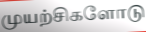
முயற்சிகளோடு